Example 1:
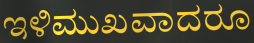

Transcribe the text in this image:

ಇಳಿಮುಖವಾದರೂ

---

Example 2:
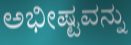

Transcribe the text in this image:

ಅಭೀಷ್ಟವನ್ನು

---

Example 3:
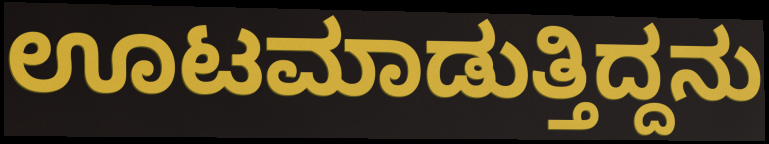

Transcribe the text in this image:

ಊಟಮಾಡುತ್ತಿದ್ದನು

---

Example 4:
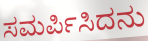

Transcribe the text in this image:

ಸಮರ್ಪಿಸಿದನು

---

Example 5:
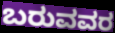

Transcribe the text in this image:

ಬರುವವರ